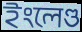
ইংলেণ্ড